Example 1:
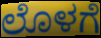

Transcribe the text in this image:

ಲೊಳಗೆ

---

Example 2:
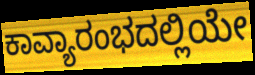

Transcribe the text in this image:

ಕಾವ್ಯಾರಂಭದಲ್ಲಿಯೇ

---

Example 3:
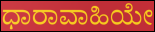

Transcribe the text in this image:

ಧಾರಾವಾಹಿಯೇ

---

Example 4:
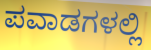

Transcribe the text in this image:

ಪವಾಡಗಳಲ್ಲಿ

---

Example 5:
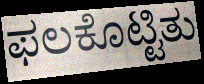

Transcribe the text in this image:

ಫಲಕೊಟ್ಟಿತು